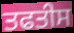
ਤਫਤੀਸ